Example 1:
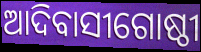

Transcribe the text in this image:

ଆଦିବାସୀଗୋଷ୍ଠୀ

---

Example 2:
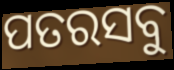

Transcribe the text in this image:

ପତରସବୁ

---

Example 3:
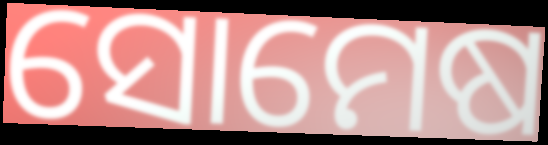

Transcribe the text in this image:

ସୋମେଷ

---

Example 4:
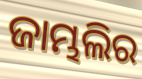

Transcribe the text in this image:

ଜାମ୍ଭଲିର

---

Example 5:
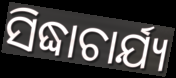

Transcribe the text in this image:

ସିଦ୍ଧାଚାର୍ଯ୍ୟ